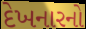
દેખનારનો